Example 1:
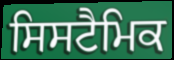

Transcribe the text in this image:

ਸਿਸਟੈਮਿਕ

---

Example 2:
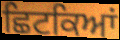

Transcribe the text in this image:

ਛਿਟਕਿਆਂ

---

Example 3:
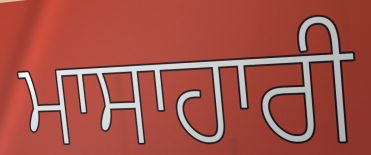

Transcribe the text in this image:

ਮਾਸਾਹਾਰੀ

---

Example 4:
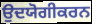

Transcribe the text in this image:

ਉਦਯੋਗੀਕਰਨ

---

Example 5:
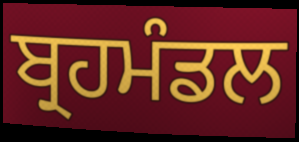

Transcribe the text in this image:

ਬ੍ਰਹਮੰਡਲ